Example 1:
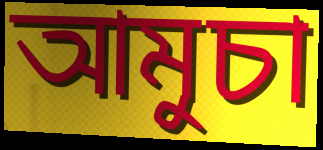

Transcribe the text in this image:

আমুচা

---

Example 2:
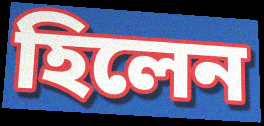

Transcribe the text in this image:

হিলেন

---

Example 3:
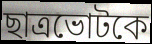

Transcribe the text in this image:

ছাত্রভোটকে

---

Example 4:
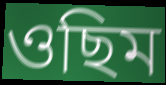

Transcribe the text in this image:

ওছিম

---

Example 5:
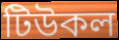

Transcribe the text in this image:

টিউকল